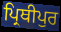
ਪ੍ਰਿਥੀਪੁਰ